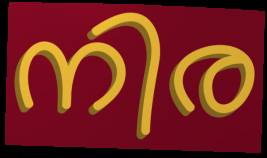
നിര